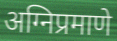
अग्निप्रमाणे